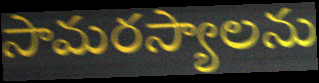
సామరస్యాలను